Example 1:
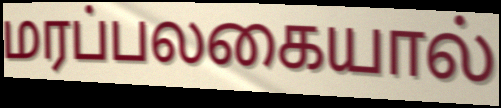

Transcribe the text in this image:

மரப்பலகையால்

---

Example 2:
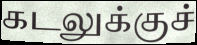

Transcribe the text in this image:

கடலுக்குச்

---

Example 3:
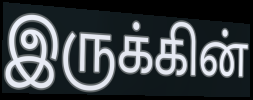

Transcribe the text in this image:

இருக்கின்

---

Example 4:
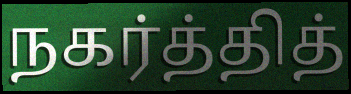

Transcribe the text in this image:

நகர்த்தித்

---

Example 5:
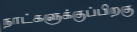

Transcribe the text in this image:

நாட்களுக்குப்பிறகு